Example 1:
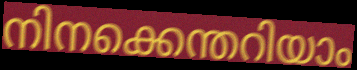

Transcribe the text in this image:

നിനക്കെന്തറിയാം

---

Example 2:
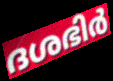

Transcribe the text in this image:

ദശഭിർ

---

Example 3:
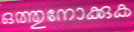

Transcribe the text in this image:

ഒത്തുനോക്കുക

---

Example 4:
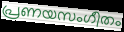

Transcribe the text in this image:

പ്രണയസംഗീതം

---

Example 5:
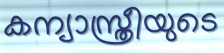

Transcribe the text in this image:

കന്യാസ്ത്രീയുടെ